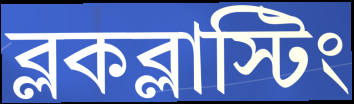
ব্লকব্লাস্টিং